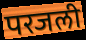
परजली